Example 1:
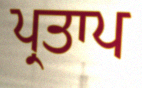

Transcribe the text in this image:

ਪ੍ਰਤਾਪ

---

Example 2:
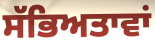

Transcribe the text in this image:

ਸੱਭਿਅਤਾਵਾਂ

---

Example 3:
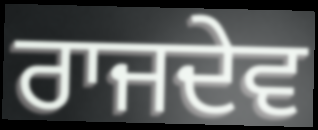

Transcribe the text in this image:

ਰਾਜਦੇਵ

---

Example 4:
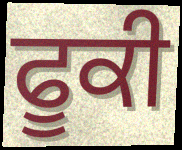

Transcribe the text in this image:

ਫੂਕੀ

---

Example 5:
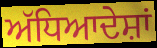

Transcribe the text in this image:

ਅੱਧਿਆਦੇਸ਼ਾਂ